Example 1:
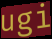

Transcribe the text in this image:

ugi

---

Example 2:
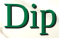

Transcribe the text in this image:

Dip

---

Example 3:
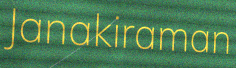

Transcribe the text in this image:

Janakiraman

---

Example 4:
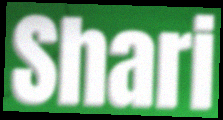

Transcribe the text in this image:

Shari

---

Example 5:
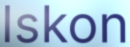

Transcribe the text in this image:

Iskon